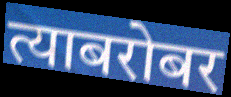
त्याबरोबर